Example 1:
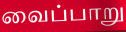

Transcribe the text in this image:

வைப்பாறு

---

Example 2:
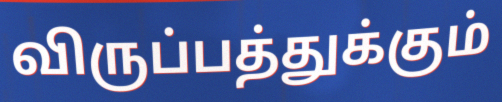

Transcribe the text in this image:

விருப்பத்துக்கும்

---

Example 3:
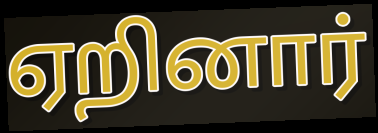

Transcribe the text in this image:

ஏறினார்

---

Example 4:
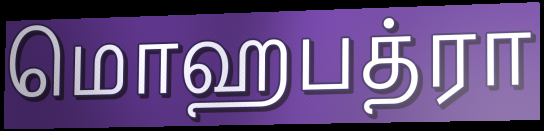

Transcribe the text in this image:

மொஹபத்ரா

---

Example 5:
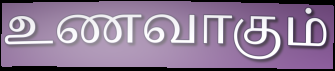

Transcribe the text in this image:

உணவாகும்